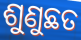
ଶୁଣୁଛତ